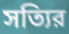
সত্যির